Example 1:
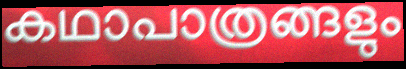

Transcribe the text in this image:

കഥാപാത്രങ്ങളും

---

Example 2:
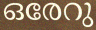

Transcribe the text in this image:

ഒരേറു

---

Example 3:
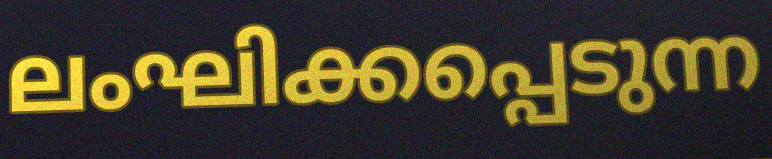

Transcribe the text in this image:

ലംഘിക്കപ്പെടുന്ന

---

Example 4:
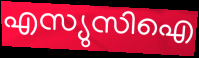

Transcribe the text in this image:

എസ്യുസിഐ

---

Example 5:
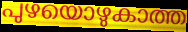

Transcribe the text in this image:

പുഴയൊഴുകാത്ത